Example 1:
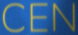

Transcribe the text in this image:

CEN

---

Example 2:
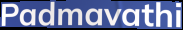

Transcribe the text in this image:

Padmavathi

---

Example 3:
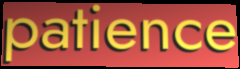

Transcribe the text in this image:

patience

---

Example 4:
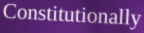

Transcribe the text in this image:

Constitutionally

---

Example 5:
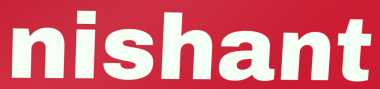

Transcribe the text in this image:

nishant